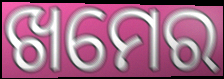
ଖମେର